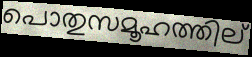
പൊതുസമൂഹത്തില്